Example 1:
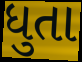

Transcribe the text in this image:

ધુતા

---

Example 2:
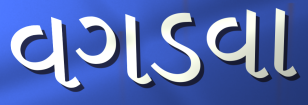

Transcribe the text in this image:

વગડવા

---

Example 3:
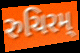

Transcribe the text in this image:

રુચિરમ્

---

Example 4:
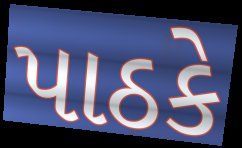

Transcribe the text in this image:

પાઠકે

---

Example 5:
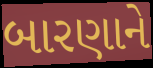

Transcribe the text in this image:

બારણાને